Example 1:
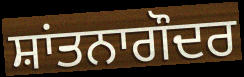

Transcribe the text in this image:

ਸ਼ਾਂਤਨਾਗੌਦਰ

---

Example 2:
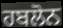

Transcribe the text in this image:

ਹਬਲੋਨ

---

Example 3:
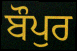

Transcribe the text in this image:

ਬੌਪੁਰ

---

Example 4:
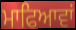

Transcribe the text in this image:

ਮਾਫਿਆਵਾਂ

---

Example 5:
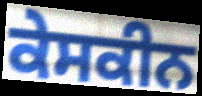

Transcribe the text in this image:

ਕੇਸਕੀਨ